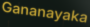
Gananayaka